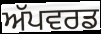
ਅੱਪਵਰਡ